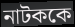
নাটককে